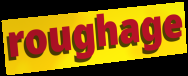
roughage